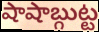
షాషాబ్గుట్ట